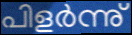
പിളർന്നു്